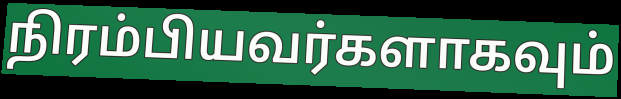
நிரம்பியவர்களாகவும்